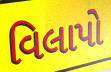
વિલાપો